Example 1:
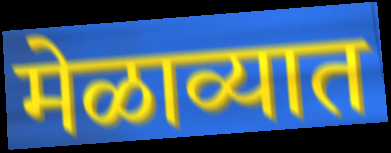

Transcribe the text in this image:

मेळाव्यात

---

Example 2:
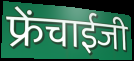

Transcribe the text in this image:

फ्रेंचाईजी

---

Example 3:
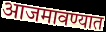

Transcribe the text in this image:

आजमावण्यात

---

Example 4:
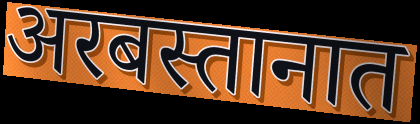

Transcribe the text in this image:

अरबस्तानात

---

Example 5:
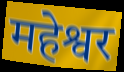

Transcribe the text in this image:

महेश्वर